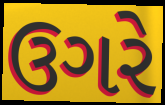
ઉગરે